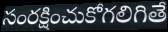
సంరక్షించుకోగలిగితే